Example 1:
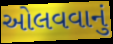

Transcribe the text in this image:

ઓલવવાનું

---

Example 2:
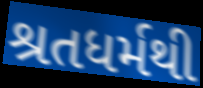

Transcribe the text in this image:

શ્રતધર્મથી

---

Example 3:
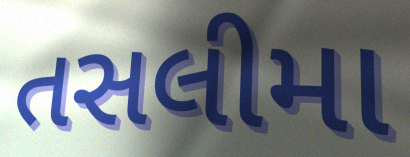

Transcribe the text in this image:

તસલીમા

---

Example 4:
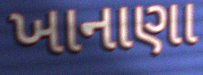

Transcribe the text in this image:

ખાનાણા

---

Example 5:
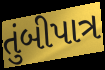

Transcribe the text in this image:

તુંબીપાત્ર